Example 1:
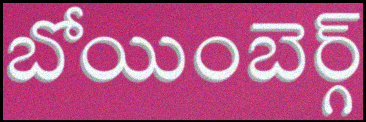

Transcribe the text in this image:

బోయింబెర్గ్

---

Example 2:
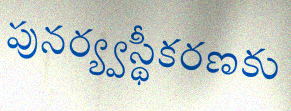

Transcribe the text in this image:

పునర్య్వస్థీకరణకు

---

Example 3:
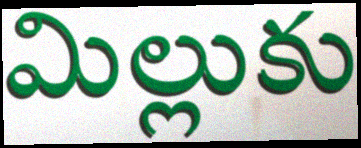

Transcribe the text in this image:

మిల్లుకు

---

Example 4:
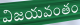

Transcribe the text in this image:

విజయవంతం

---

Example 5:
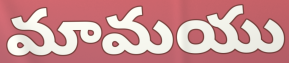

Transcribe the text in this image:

మామయు